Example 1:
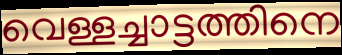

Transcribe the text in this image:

വെള്ളച്ചാട്ടത്തിനെ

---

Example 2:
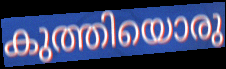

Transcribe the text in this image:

കുത്തിയൊരു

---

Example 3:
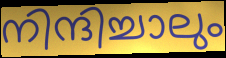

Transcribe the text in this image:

നിന്ദിച്ചാലും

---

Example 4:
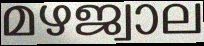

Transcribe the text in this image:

മഴജ്വാല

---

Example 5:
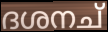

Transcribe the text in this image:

ദശനച്